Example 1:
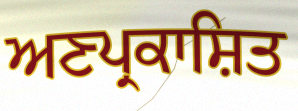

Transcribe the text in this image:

ਅਣਪ੍ਰਕਾਸ਼ਿਤ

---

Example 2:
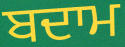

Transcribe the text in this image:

ਬਦਾਮ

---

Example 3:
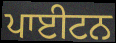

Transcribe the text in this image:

ਪਾਈਟਨ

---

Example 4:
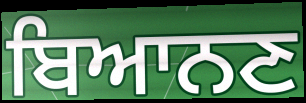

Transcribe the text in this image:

ਬਿਆਨਣ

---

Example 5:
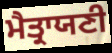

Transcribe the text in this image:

ਮੈਤ੍ਰਾਯਣੀ